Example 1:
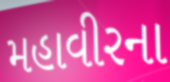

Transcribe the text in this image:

મહાવીરના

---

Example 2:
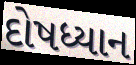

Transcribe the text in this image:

દોષધ્યાન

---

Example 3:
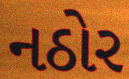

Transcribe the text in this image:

નઠોર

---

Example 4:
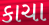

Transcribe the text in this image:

કાચા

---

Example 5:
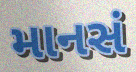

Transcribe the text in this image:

માનસં